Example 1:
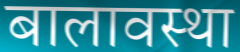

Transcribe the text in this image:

बालावस्था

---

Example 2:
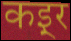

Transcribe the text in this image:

कइ्र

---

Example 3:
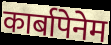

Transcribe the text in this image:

कार्बापेनेम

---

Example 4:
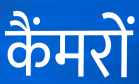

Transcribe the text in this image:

कैंमरों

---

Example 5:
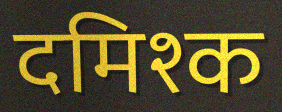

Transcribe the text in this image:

दमिश्क